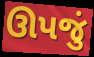
ઊપજું